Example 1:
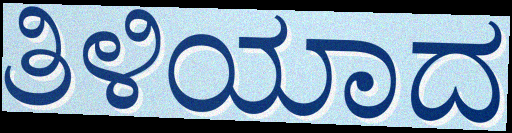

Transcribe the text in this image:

ತಿಳಿಯಾದ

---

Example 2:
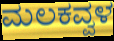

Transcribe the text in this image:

ಮಲಕವ್ವಳ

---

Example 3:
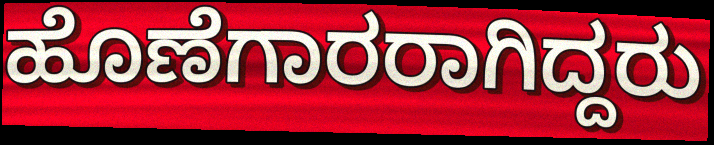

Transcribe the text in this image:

ಹೊಣೆಗಾರರಾಗಿದ್ದರು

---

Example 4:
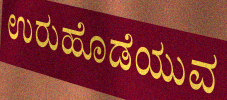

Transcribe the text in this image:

ಉರುಹೊಡೆಯುವ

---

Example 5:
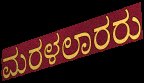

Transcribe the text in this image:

ಮರಳಲಾರರು